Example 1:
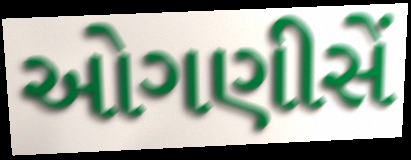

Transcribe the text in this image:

ઓગણીસેં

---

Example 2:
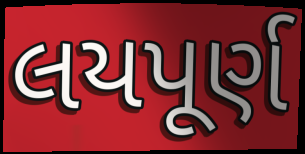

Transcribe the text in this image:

લયપૂર્ણ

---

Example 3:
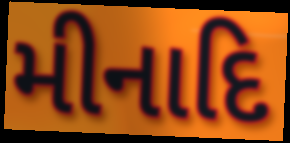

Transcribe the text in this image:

મીનાદિ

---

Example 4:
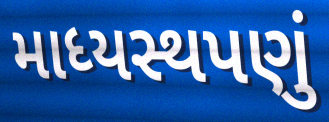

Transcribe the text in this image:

માધ્યસ્થપણું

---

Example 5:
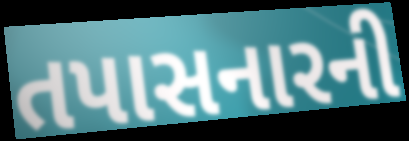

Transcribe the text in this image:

તપાસનારની